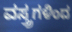
ವಸ್ತ್ರಗಳಿಂದ